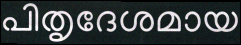
പിതൃദേശമായ